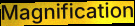
Magnification